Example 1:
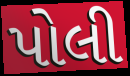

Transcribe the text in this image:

પોલી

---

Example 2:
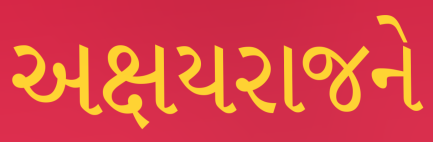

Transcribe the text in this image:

અક્ષયરાજને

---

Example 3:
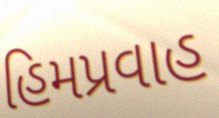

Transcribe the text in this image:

હિમપ્રવાહ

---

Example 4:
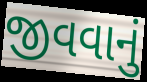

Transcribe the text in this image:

જીવવાનું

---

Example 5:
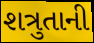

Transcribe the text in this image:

શત્રુતાની